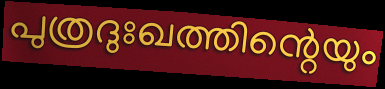
പുത്രദുഃഖത്തിന്റെയും